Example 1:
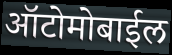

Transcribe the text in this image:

ऑटोमोबाईल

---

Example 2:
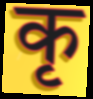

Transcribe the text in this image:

कृ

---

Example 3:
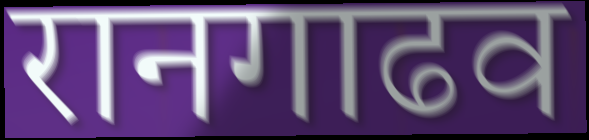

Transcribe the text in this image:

रानगाढव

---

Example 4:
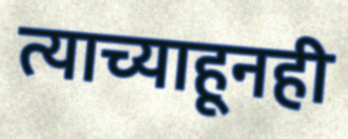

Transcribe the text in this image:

त्याच्याहूनही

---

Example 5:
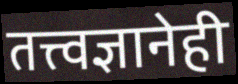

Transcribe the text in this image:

तत्त्वज्ञानेही